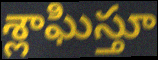
శ్లాఘిస్తూ